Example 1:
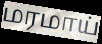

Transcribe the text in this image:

மரமாய்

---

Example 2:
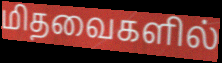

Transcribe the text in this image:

மிதவைகளில்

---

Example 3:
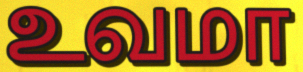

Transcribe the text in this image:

உவமா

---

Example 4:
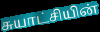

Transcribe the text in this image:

சுயாட்சியின்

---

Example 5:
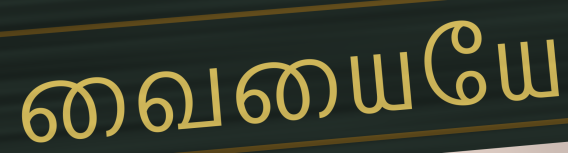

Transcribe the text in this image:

வையையே